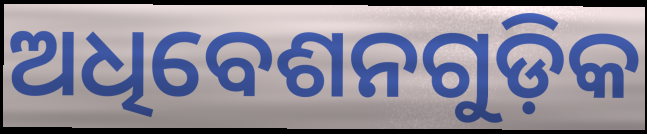
ଅଧିବେଶନଗୁଡ଼ିକ